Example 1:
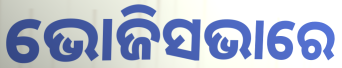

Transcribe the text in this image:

ଭୋଜିସଭାରେ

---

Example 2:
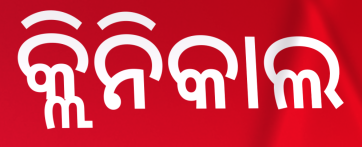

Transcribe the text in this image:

କ୍ଲିନିକାଲ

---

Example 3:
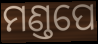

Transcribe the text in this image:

ମଣ୍ଡପେ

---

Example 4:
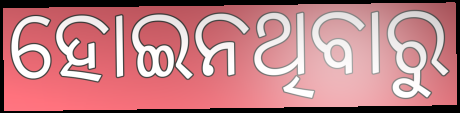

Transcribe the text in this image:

ହୋଇନଥିବାରୁ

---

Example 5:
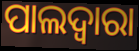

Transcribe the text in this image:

ପାଲଦ୍ୱାରା